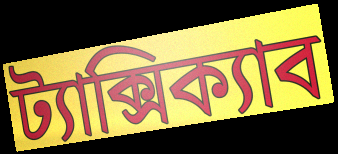
ট্যাক্সিক্যাব